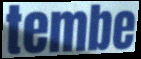
tembe